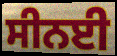
ਸੀਨਈ